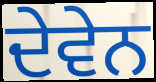
ਦੇਵੇਨ